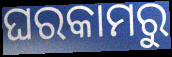
ଘରକାମରୁ